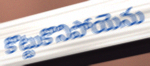
కొట్టుకొనిపోయెను